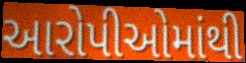
આરોપીઓમાંથી